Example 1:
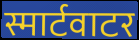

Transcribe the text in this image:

स्मार्टवाटर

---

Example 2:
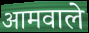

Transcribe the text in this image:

आमवाले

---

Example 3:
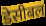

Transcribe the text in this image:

डेसीबल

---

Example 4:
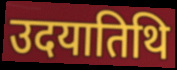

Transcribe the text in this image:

उदयातिथि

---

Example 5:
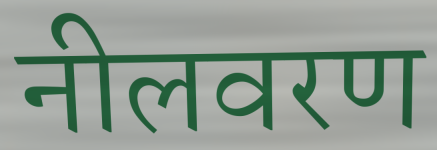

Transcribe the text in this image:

नीलवरण